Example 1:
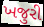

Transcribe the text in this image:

ખજુરી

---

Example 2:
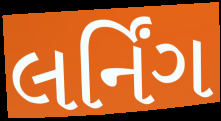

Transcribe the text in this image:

લર્નિંગ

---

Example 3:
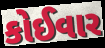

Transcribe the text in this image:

કોઈવાર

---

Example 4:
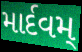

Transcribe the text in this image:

માર્દવમ્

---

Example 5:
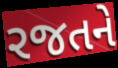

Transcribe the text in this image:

રજતને